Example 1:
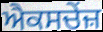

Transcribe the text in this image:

ਐਕਸਚੇਂਜ਼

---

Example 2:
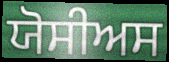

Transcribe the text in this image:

ਯੋਸੀਅਸ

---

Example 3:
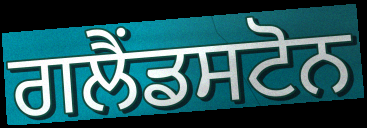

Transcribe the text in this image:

ਗਲੈਂਡਸਟੋਨ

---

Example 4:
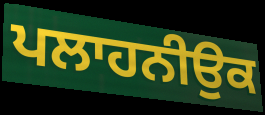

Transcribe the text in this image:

ਪਲਾਹਨੀਉਕ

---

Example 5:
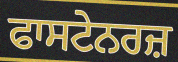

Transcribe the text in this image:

ਫਾਸਟੇਨਰਜ਼